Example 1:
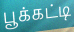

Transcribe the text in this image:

பூக்கட்டி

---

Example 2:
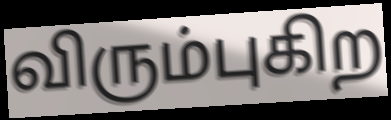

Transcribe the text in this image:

விரும்புகிற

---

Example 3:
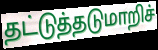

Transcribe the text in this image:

தட்டுத்தடுமாறிச்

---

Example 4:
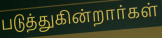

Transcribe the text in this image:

படுத்துகின்றார்கள்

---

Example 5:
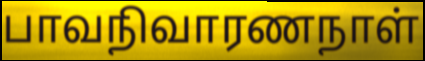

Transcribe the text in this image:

பாவநிவாரணநாள்